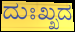
ದುಃಖ್ಖದ